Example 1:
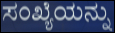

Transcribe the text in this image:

ಸಂಖ್ಯೆಯನ್ನು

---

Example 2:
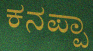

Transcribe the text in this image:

ಕನಪ್ಪಾ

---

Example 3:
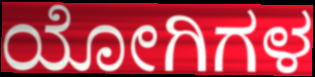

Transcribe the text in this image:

ಯೋಗಿಗಳ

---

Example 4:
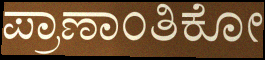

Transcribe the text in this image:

ಪ್ರಾಣಾಂತಿಕೋ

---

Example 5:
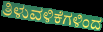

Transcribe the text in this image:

ತಿಳುವಳಿಕೆಗಳಿಂದ